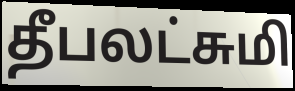
தீபலட்சுமி